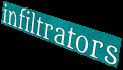
infiltrators